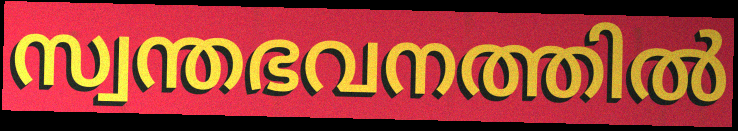
സ്വന്തഭവനത്തിൽ